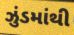
ઝુંડમાંથી